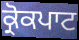
ਕ੍ਰੋਕਪਾਟ